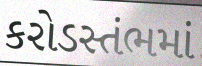
કરોડસ્તંભમાં